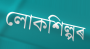
লোকশিল্পৰ